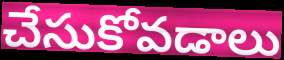
చేసుకోవడాలు